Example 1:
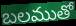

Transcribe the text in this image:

బలముతో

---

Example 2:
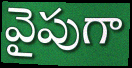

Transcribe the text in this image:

వైపుగా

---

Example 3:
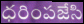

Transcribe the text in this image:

ధరింపజేసి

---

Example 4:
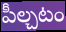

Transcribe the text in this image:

పీల్చటం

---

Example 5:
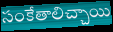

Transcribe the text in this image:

సంకేతాలిచ్చాయి